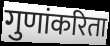
गुणांकरिता